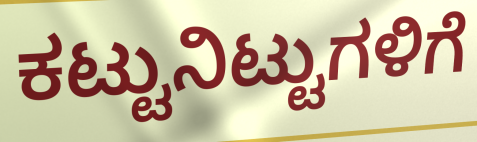
ಕಟ್ಟುನಿಟ್ಟುಗಳಿಗೆ